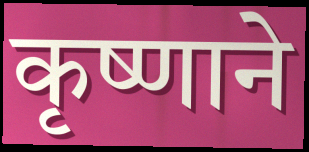
कृष्णाने